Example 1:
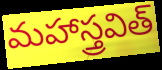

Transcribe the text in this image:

మహాస్త్రవిత్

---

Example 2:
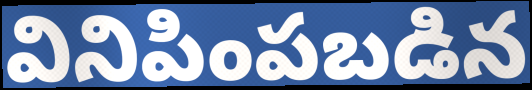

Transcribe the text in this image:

వినిపింపబడిన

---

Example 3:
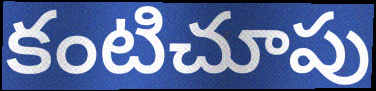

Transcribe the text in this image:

కంటిచూపు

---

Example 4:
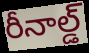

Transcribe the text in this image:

రీనాల్డ్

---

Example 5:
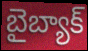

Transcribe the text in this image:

బైబ్యాక్